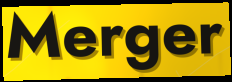
Merger